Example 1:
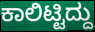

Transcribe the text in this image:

ಕಾಲಿಟ್ಟಿದ್ದು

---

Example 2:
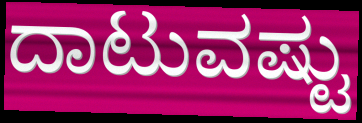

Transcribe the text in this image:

ದಾಟುವಷ್ಟು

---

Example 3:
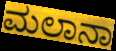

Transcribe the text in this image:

ಮಲಾನಾ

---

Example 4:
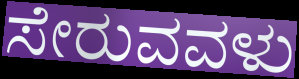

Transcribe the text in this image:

ಸೇರುವವಳು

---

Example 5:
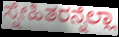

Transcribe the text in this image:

ಸ್ನೇಹಿತರನ್ನೆಲ್ಲಾ